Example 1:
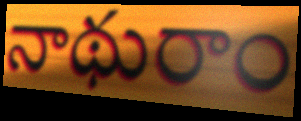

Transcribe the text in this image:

నాథురాం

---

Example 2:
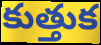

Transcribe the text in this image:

కుత్తుక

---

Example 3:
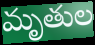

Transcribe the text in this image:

మృతుల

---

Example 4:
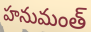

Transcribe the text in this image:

హనుమంత్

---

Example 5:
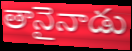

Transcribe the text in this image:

తానైనాడు